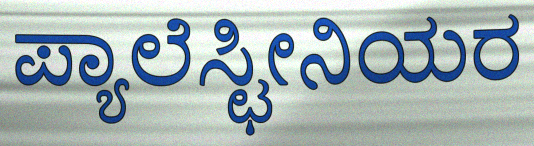
ಪ್ಯಾಲೆಸ್ಟೀನಿಯರ